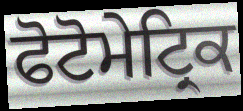
ਫੋਟੋਮੇਟ੍ਰਿਕ